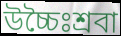
উচ্চৈঃশ্রবা